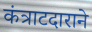
कंत्राटदाराने